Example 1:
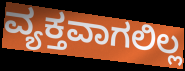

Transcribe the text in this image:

ವ್ಯಕ್ತವಾಗಲಿಲ್ಲ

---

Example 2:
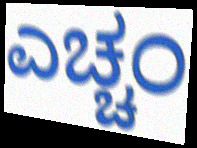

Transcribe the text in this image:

ಎಚ್ಚಂ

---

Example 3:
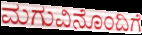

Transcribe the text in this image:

ಮಗುವಿನೊಂದಿಗೆ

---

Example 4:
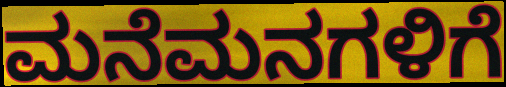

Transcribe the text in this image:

ಮನೆಮನಗಳಿಗೆ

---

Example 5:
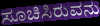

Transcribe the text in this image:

ಸೂಚಿಸಿರುವನು